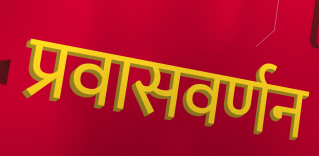
प्रवासवर्णन